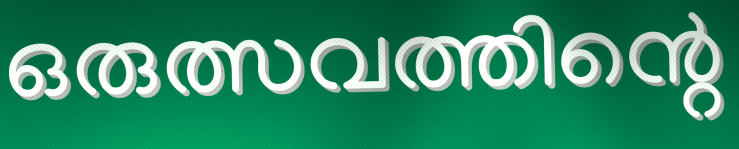
ഒരുത്സവത്തിന്റെ